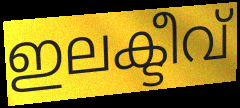
ഇലക്ടീവ്